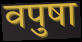
वपुषा